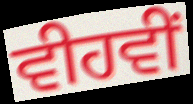
ਵੀਹਵੀਂ